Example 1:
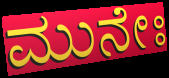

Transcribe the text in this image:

ಮುನೇಃ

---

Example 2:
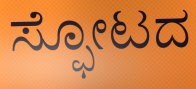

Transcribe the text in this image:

ಸ್ಫೋಟದ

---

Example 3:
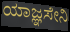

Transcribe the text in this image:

ಯಾಜ್ಞಸೇನಿ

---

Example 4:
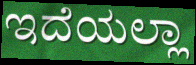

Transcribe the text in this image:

ಇದೆಯಲ್ಲಾ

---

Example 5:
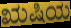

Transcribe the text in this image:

ಋಷಿಯ